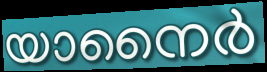
യാനൈർ